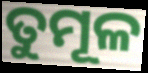
ତୁମୂଳ